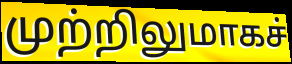
முற்றிலுமாகச்